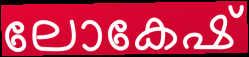
ലോകേഷ്